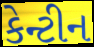
કેન્ટીન